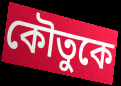
কৌতুকে